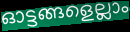
ഓട്ടങ്ങളെല്ലാം